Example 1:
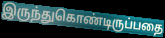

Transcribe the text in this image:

இருந்துகொண்டிருப்பதை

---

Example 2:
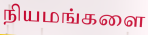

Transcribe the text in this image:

நியமங்களை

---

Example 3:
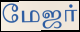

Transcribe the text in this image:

மேஜர்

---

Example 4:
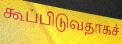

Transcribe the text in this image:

கூப்பிடுவதாகச்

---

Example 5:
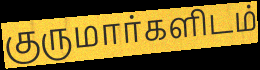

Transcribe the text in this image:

குருமார்களிடம்